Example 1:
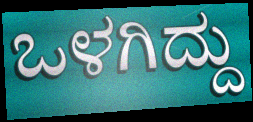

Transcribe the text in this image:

ಒಳಗಿದ್ದು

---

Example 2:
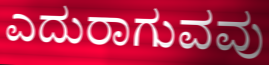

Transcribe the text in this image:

ಎದುರಾಗುವವು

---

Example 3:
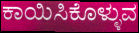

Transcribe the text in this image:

ಕಾಯಿಸಿಕೊಳ್ಳುವ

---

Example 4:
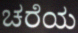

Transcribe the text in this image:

ಚರೆಯ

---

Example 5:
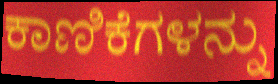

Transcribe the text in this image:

ಕಾಣಿಕೆಗಳನ್ನು